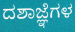
ದಶಾಜ್ಞೆಗಳ